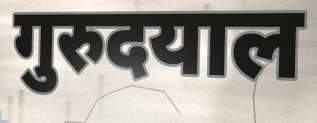
गुरुदयाल